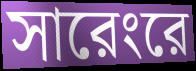
সারেংরে